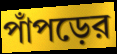
পাঁপড়ের